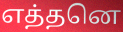
எத்தனெ